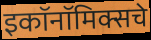
इकॉनॉमिक्सचे